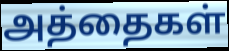
அத்தைகள்